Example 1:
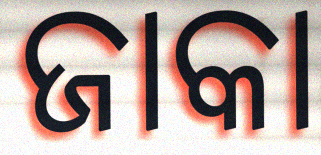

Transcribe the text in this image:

ଜାକା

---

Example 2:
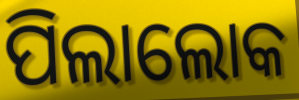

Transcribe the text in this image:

ପିଲାଲୋକ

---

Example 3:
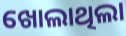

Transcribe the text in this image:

ଖୋଲାଥିଲା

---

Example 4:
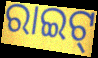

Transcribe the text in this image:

ରାଇଟ୍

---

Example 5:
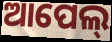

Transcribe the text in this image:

ଆପେଲ୍